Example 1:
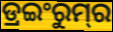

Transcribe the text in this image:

ଡ୍ରଇଂରୁମ୍‌ର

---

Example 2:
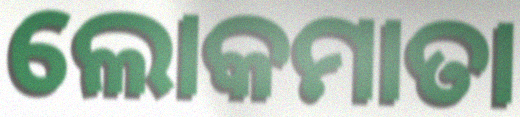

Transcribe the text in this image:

ଲୋକମାତା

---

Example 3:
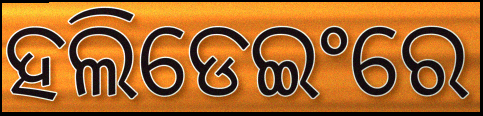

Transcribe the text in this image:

ହଲିଡେଇଂରେ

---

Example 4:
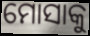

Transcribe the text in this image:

ମୋସାକୁ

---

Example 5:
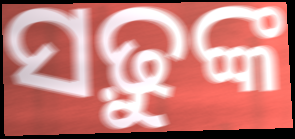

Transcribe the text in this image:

ସଢ଼ୁଙ୍କ